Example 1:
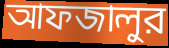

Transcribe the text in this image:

আফজালুর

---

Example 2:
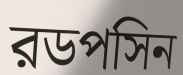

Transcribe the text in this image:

রডপসিন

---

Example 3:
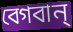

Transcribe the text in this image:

বেগবান্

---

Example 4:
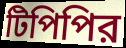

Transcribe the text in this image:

টিপিপির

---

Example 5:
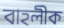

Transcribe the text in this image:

বাহলীক